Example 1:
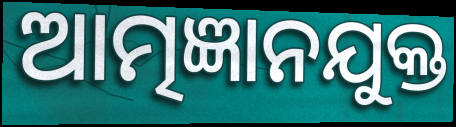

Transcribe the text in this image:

ଆତ୍ମଜ୍ଞାନଯୁକ୍ତ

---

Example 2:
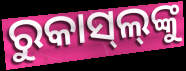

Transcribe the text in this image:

ରୁକାସ୍‍ଲ୍‌ଙ୍କୁ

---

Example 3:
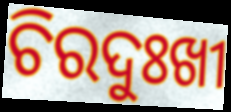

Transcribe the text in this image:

ଚିରଦୁଃଖୀ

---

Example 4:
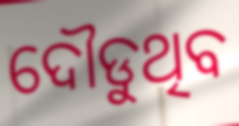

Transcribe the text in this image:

ଦୌଡୁଥିବ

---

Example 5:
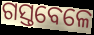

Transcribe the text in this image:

ଗସ୍ତବେଳେ